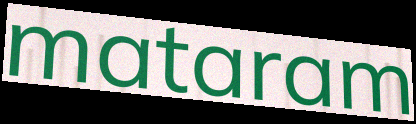
mataram